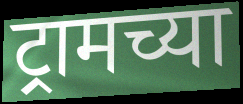
ट्रामच्या